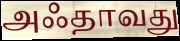
அஃதாவது